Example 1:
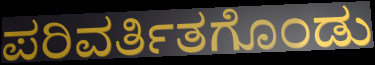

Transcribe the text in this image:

ಪರಿವರ್ತಿತಗೊಂಡು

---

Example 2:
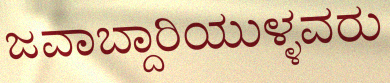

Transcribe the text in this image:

ಜವಾಬ್ದಾರಿಯುಳ್ಳವರು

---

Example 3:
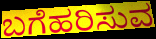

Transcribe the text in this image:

ಬಗೆಹರಿಸುವ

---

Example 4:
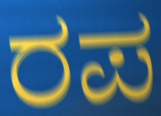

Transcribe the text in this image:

ರಪ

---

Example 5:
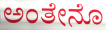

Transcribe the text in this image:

ಅಂತೇನೊ